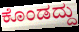
ಕೊಂಡದ್ದು